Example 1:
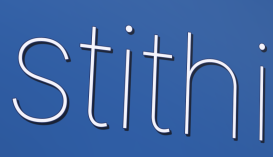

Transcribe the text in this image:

stithi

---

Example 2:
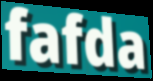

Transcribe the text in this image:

fafda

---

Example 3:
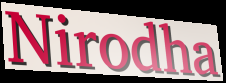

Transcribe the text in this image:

Nirodha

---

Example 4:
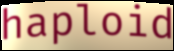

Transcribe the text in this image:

haploid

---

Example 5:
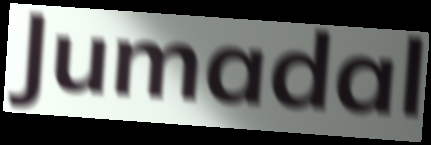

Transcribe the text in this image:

Jumadal